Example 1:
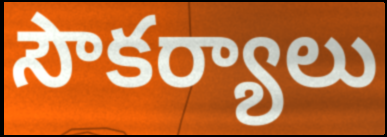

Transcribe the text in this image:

సౌకర్యాలు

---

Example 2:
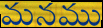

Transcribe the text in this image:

మనము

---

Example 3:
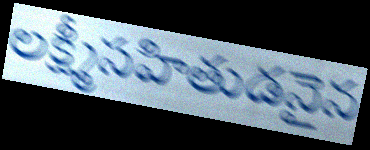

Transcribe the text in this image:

లక్ష్మీసహితుడనైన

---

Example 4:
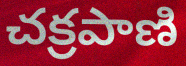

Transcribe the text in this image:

చక్రపాణి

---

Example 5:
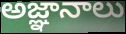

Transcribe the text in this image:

అజ్ఞానాలు